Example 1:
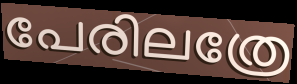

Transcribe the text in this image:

പേരിലത്രേ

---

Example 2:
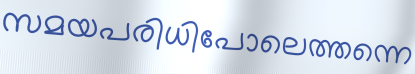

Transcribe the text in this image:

സമയപരിധിപോലെത്തന്നെ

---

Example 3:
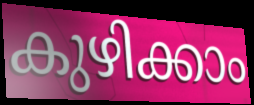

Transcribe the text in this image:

കുഴിക്കാം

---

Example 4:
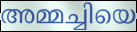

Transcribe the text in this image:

അമ്മച്ചിയെ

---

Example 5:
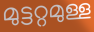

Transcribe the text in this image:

മുട്ടറ്റമുള്ള